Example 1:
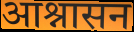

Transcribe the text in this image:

आश्नासन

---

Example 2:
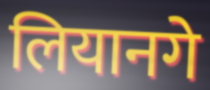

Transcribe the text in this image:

लियानगे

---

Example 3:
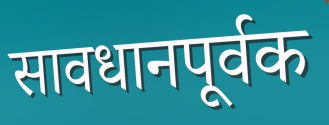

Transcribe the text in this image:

सावधानपूर्वक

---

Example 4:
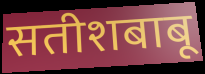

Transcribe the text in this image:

सतीशबाबू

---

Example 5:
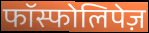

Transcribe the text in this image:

फॉस्फोलिपेज़